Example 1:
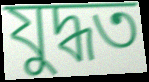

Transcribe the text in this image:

যুদ্ধত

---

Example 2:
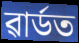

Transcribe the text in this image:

ৱাৰ্ডত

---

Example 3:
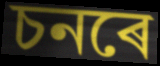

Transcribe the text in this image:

চনৰে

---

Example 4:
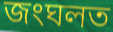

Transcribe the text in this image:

জংঘলত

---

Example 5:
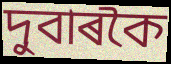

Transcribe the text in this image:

দুবাৰকৈ